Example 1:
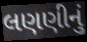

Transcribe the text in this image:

લણણીનું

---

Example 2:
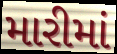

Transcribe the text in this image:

મારીમાં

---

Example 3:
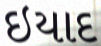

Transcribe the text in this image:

ઇયાદ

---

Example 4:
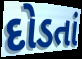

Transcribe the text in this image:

દોડતાં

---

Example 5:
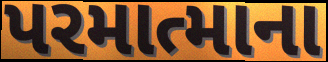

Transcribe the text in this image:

પરમાત્માના